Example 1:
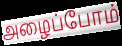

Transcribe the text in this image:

அழைப்போம்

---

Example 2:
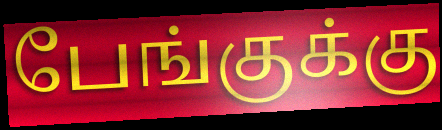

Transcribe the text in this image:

பேங்குக்கு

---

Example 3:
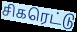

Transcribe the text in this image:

சிகரெட்டு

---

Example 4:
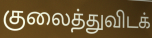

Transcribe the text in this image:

குலைத்துவிடக்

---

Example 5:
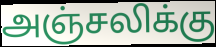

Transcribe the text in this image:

அஞ்சலிக்கு